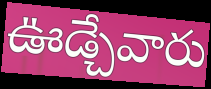
ఊడ్చేవారు